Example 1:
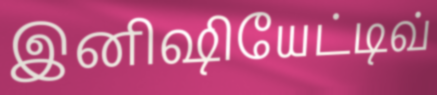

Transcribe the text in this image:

இனிஷியேட்டிவ்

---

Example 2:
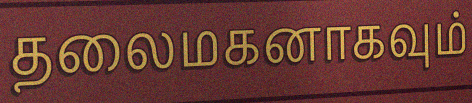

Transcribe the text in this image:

தலைமகனாகவும்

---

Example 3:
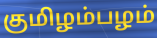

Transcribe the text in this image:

குமிழம்பழம்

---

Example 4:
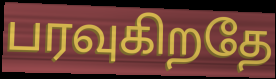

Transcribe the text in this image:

பரவுகிறதே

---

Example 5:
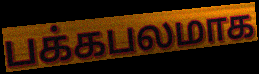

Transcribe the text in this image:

பக்கபலமாக